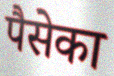
पैसेका